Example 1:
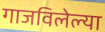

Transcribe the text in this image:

गाजविलेल्या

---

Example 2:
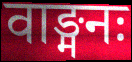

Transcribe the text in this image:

वाङ्मनः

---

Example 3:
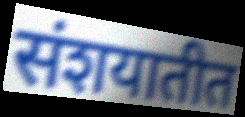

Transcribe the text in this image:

संशयातीत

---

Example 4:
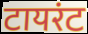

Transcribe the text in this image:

टायरंट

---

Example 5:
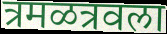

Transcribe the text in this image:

त्रमळत्रवला